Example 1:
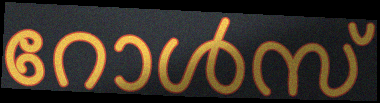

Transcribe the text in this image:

റോൾസ്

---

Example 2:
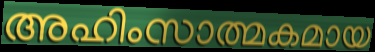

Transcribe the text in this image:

അഹിംസാത്മകമായ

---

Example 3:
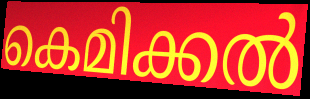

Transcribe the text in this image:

കെമിക്കൽ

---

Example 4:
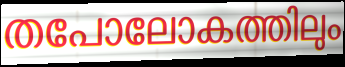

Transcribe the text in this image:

തപോലോകത്തിലും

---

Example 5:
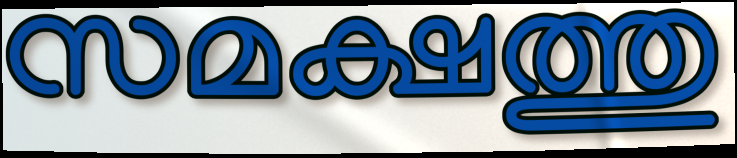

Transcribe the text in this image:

സമക്ഷത്തു